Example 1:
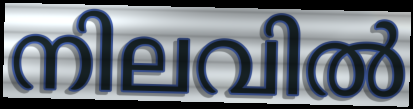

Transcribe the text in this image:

നിലവിൽ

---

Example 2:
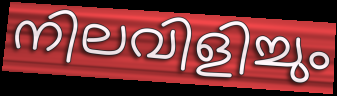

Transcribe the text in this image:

നിലവിളിച്ചും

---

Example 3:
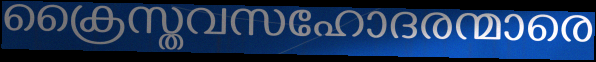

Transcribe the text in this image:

ക്രൈസ്തവസഹോദരന്മാരെ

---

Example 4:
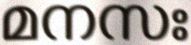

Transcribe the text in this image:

മനസഃ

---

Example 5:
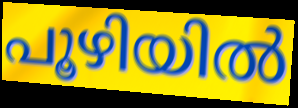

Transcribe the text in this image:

പൂഴിയിൽ